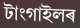
টাংগাইলৰ